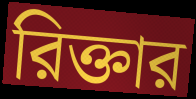
রিক্তার